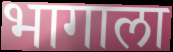
भागाला